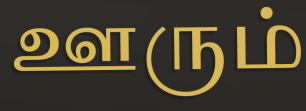
ஊரும்